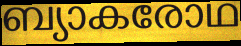
ബ്യാകരോഥ